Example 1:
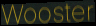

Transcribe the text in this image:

Wooster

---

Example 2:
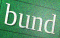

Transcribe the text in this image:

bund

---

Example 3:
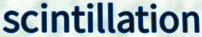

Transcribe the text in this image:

scintillation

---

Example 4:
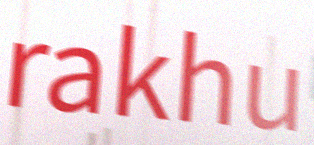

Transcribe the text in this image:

rakhu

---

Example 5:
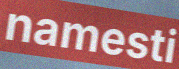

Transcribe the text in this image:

namesti